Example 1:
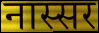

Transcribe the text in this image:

नास्सर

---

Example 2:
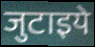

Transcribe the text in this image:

जुटाइये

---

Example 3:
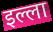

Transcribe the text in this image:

इल्ला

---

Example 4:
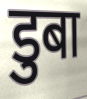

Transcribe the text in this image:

डुबा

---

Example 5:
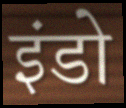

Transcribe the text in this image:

इंडो